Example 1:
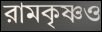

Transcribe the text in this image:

রামকৃষ্ণও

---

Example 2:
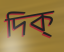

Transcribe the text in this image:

দিক্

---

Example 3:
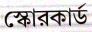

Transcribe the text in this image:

স্কোরকার্ড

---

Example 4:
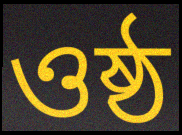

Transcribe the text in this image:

ওষ্ঠ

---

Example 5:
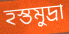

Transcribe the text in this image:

হস্তমুদ্রা